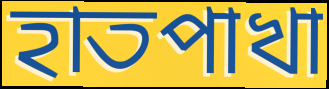
হাতপাখা